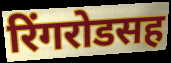
रिंगरोडसह